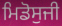
ਮਿਡੋਸੁਜੀ